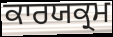
ਕਾਰਯਕ੍ਰਮ